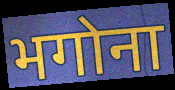
भगोना